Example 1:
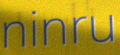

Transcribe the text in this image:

ninru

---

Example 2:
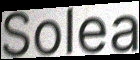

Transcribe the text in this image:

Solea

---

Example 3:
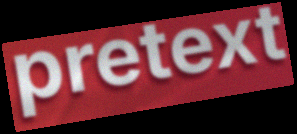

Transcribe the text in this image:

pretext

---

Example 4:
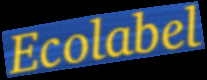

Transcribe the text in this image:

Ecolabel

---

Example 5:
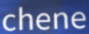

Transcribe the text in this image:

chene